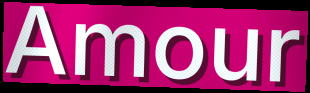
Amour